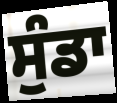
ਸੁੰਡਾ